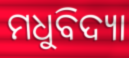
ମଧୁବିଦ୍ୟା